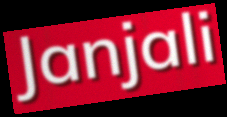
Janjali